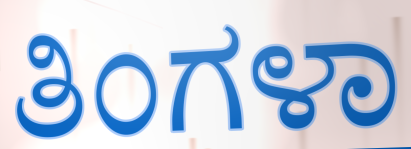
ತಿಂಗಳಾ